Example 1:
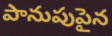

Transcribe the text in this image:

పానుపుపైన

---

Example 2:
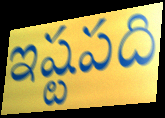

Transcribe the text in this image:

ఇష్టపది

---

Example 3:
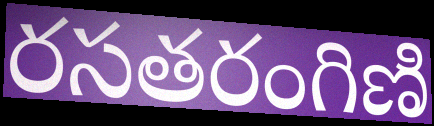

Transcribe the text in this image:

రసతరంగిణి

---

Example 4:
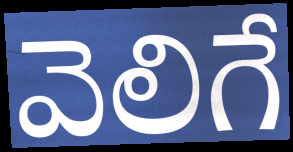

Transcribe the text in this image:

వెలిగే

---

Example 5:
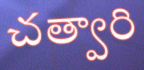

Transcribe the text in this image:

చత్వారి